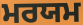
ਮਰਯਮ